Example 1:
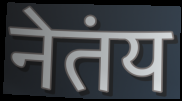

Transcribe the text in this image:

नेतंय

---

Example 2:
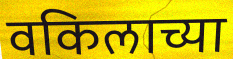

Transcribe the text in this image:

वकिलाच्या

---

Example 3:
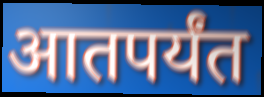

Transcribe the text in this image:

आतपर्यंत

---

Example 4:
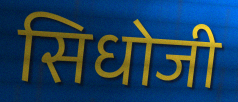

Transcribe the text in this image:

सिधोजी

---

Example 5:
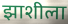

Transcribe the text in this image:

झाशीला